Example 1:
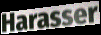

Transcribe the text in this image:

Harasser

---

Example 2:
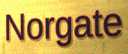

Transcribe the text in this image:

Norgate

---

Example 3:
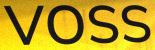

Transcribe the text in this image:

VOSS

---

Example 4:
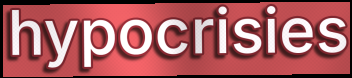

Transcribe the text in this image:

hypocrisies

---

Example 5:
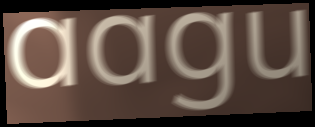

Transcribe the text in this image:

aagu